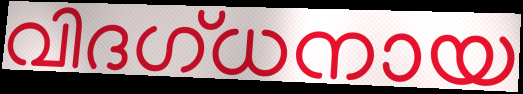
വിദഗ്ധനായ